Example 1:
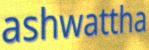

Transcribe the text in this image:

ashwattha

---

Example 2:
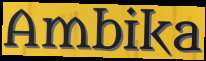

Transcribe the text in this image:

Ambika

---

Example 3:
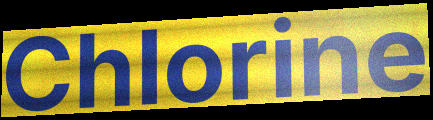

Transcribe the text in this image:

Chlorine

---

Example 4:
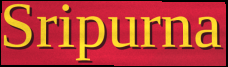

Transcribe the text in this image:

Sripurna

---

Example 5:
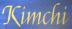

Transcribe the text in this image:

Kimchi